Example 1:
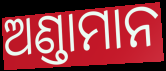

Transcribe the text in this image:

ଅଣ୍ଡାମାନ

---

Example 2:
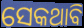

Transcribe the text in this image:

ସେକଥାବି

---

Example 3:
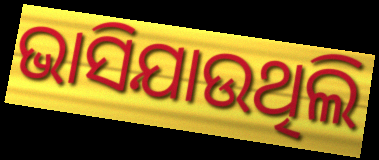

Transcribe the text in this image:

ଭାସିଯାଉଥିଲି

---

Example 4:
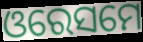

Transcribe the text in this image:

ଓରେସମେ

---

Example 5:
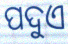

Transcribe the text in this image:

ପଦୁଏ